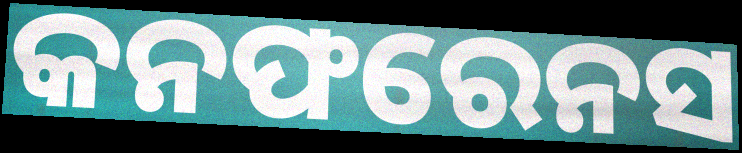
କନଫରେନସ